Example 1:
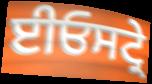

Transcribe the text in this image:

ਈਓਸਟ੍ਰੇ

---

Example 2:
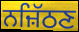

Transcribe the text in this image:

ਨਜ਼ਿੱਠਣ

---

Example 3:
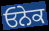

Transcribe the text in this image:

ਓਨੇਕ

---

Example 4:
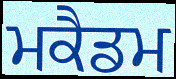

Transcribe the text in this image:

ਮਕੈਡਮ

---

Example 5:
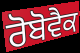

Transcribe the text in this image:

ਰੋਬੋਵੈਕ